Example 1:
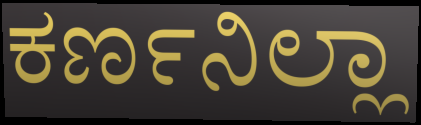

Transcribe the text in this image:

ಕರ್ಣನಿಲ್ಲಾ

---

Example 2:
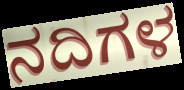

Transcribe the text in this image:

ನದಿಗಳ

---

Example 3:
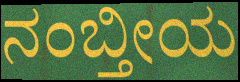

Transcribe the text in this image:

ನಂಬ್ತೀಯ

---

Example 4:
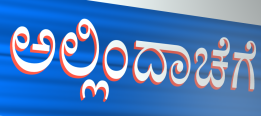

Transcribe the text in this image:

ಅಲ್ಲಿಂದಾಚೆಗೆ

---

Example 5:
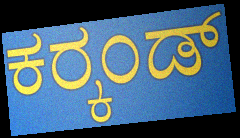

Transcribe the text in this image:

ಕರ್‍ಕಂಡ್